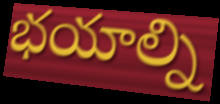
భయాల్ని